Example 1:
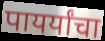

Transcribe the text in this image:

पायर्यांचा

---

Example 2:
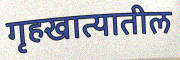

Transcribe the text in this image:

गृहखात्यातील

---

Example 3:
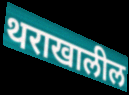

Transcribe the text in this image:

थराखालील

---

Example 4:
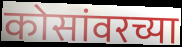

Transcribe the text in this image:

कोसांवरच्या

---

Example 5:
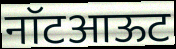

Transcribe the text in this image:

नॉटआऊट